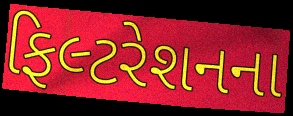
ફિલ્ટરેશનના